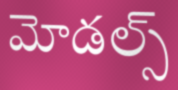
మోడల్స్